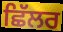
ਛਿੱਲਰ